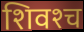
शिवश्च